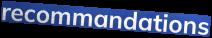
recommandations